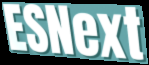
ESNext